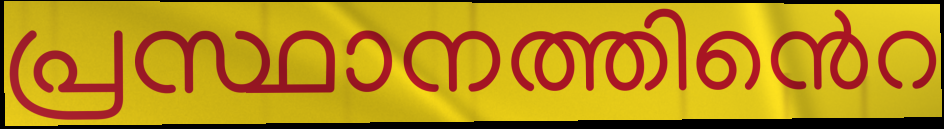
പ്രസ്ഥാനത്തിൻെറ